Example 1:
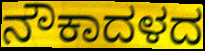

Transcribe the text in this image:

ನೌಕಾದಳದ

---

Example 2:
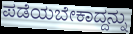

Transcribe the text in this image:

ಪಡೆಯಬೇಕಾದ್ದನ್ನು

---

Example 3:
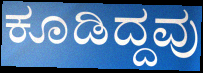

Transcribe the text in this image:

ಕೂಡಿದ್ದವು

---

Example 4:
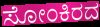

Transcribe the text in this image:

ಸೋಂಕಿರದ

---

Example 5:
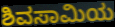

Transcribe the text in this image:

ಶಿವಸಾಮಿಯ